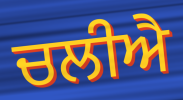
ਚਲੀਐ